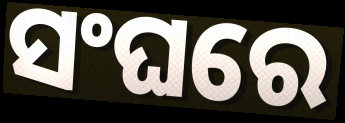
ସଂଘରେ